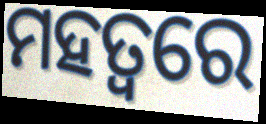
ମହତ୍ୱରେ